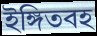
ইঙ্গিতবহ